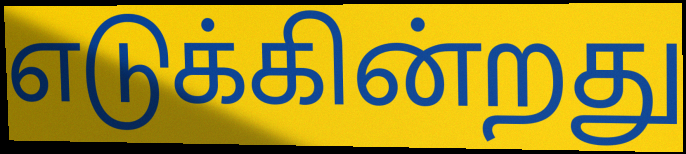
எடுக்கின்றது